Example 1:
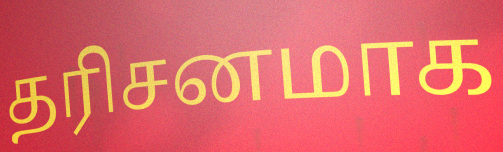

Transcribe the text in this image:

தரிசனமாக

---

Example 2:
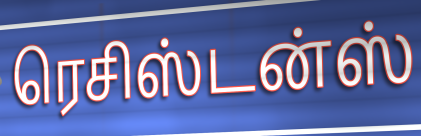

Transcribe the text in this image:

ரெசிஸ்டன்ஸ்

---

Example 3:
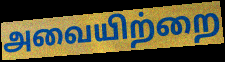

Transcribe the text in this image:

அவையிற்றை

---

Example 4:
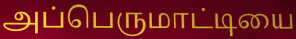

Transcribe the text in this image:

அப்பெருமாட்டியை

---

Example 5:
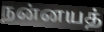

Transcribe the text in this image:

நன்னயத்